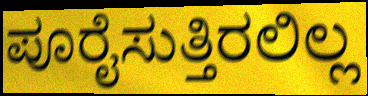
ಪೂರೈಸುತ್ತಿರಲಿಲ್ಲ